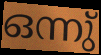
ഒന്നു്